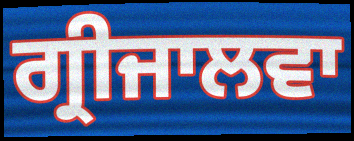
ਗ੍ਰੀਜਾਲਵਾ